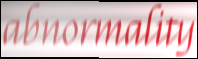
abnormality